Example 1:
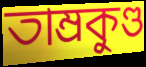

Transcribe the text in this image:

তাম্রকুণ্ড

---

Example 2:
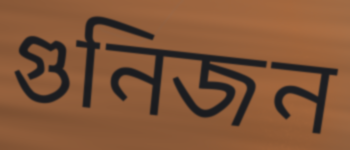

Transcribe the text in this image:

গুনিজন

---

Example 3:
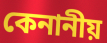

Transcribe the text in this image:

কেনানীয়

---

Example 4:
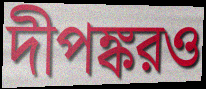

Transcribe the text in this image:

দীপঙ্করও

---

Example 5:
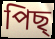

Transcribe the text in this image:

পিছ্